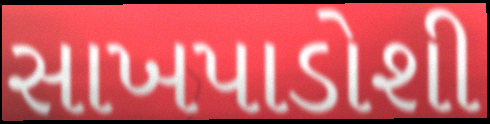
સાખપાડોશી